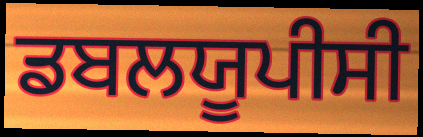
ਡਬਲਯੂਪੀਸੀ